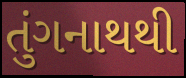
તુંગનાથથી